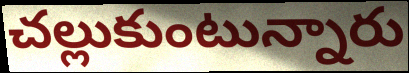
చల్లుకుంటున్నారు